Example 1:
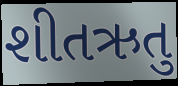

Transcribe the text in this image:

શીતઋતુ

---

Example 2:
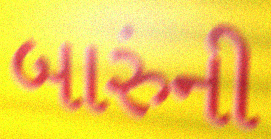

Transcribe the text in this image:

બારુંની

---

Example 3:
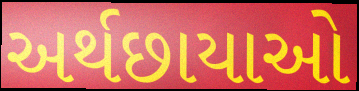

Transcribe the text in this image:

અર્થછાયાઓ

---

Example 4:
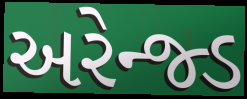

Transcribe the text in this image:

અરેન્જ્ડ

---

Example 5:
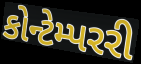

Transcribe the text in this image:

કોન્ટેમ્પરરી